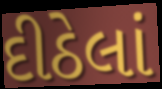
દીઠેલાં